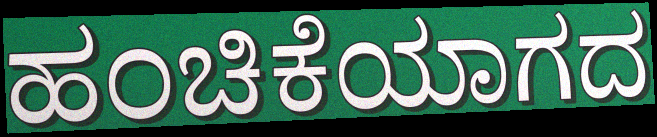
ಹಂಚಿಕೆಯಾಗದ